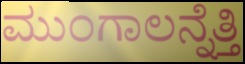
ಮುಂಗಾಲನ್ನೆತ್ತಿ